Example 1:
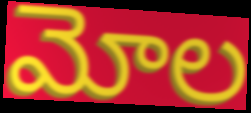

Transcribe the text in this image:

మోల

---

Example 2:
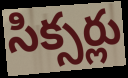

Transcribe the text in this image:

సిక్సర్లు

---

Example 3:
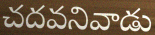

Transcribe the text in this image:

చదవనివాడు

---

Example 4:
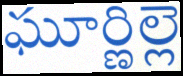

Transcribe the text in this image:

ఘూర్ణిల్లె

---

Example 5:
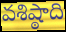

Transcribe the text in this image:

వశిష్ఠాది